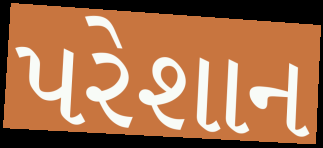
પરેશાન